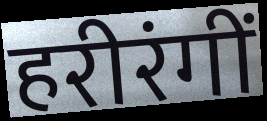
हरीरंगीं